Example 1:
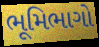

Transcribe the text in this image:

ભૂમિભાગો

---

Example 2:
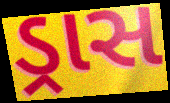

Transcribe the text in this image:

ડ્રાસ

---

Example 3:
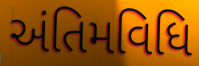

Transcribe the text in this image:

અંતિમવિધિ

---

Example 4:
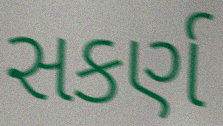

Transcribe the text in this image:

સકર્ણ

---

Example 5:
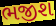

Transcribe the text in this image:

ભજીશ